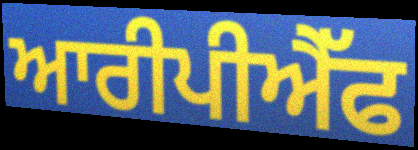
ਆਰੀਪੀਐੱਫ